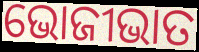
ଭୋଜୀଭାତ